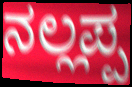
ನಲ್ಲಪ್ಪ